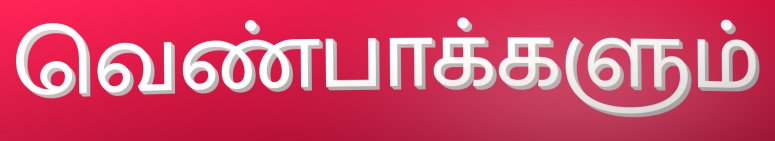
வெண்பாக்களும்